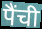
पैंची